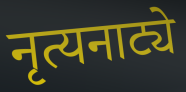
नृत्यनाट्ये